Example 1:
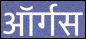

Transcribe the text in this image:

ऑर्गस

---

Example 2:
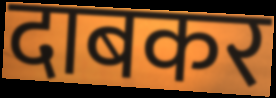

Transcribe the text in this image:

दाबकर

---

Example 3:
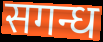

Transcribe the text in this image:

सगन्ध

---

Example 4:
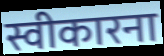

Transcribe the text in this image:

स्वीकारना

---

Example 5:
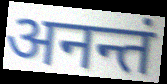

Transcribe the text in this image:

अनन्तं